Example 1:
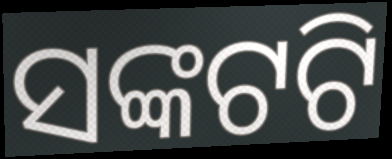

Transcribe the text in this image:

ସଙ୍କଟଟି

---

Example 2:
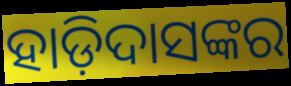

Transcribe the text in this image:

ହାଡ଼ିଦାସଙ୍କର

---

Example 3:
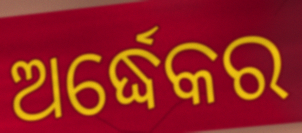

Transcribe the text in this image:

ଅର୍ଦ୍ଧେକର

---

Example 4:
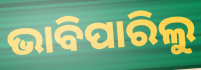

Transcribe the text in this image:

ଭାବିପାରିଲୁ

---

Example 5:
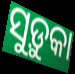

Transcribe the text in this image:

ସୁଡ଼ୁକା